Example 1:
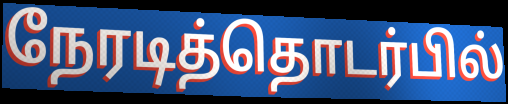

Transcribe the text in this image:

நேரடித்தொடர்பில்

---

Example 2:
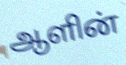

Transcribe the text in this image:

ஆளின்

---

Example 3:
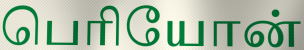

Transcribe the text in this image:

பெரியோன்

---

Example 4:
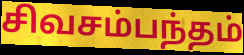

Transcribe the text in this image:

சிவசம்பந்தம்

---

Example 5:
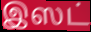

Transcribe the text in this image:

இஸட்